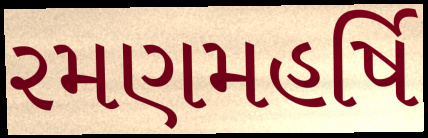
રમણમહર્ષિ